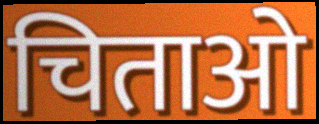
चिताओ